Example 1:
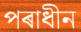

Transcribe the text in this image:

পৰাধীন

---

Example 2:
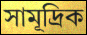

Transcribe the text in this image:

সামূদ্ৰিক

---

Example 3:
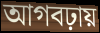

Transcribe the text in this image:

আগবঢ়ায়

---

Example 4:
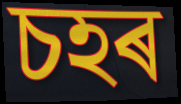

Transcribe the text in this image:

চহৰ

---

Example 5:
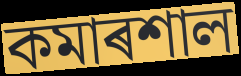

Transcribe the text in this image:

কমাৰশাল